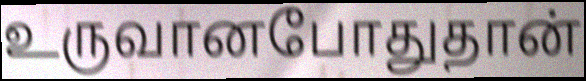
உருவானபோதுதான்